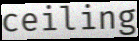
ceiling